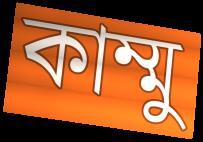
কাম্মু